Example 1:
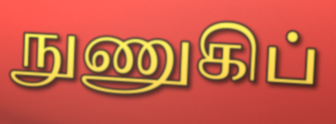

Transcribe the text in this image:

நுணுகிப்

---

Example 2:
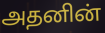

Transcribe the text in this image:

அதனின்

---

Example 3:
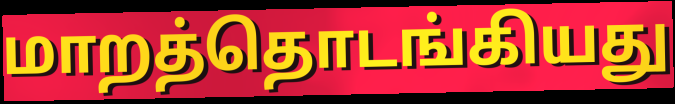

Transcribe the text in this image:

மாறத்தொடங்கியது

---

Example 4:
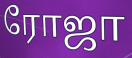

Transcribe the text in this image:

ரோஜா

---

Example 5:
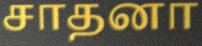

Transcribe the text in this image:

சாதனா